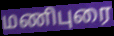
மணிபுரை